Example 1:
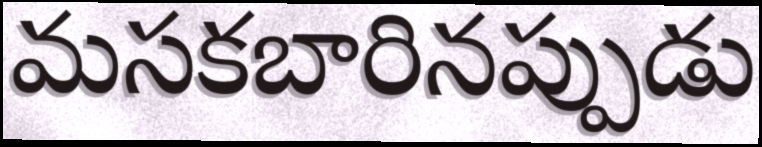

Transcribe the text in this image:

మసకబారినప్పుడు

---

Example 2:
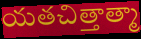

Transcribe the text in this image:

యతచిత్తాత్మా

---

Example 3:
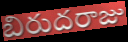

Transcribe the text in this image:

బిరుదరాజు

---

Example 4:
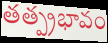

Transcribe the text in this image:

తత్ప్రభావం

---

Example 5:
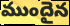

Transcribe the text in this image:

ముందైన